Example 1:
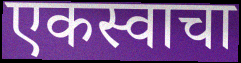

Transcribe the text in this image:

एकस्वाचा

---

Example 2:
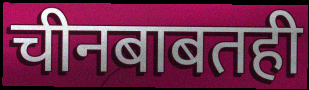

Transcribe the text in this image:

चीनबाबतही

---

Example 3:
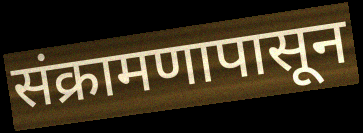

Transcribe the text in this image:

संक्रामणापासून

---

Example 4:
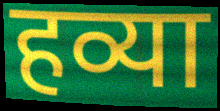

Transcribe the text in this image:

हव्या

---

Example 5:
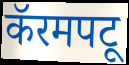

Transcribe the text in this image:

कॅरमपटू